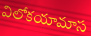
విలోకయామాస